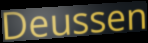
Deussen